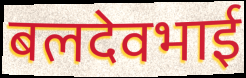
बलदेवभाई